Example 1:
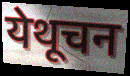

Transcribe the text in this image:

येथूचन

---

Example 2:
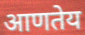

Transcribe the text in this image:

आणतेय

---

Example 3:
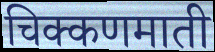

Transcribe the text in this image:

चिक्कणमाती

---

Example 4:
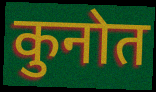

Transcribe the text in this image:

कुनोत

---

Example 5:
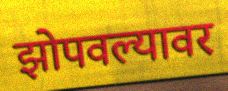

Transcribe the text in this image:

झोपवल्यावर